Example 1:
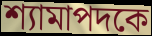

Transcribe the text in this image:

শ্যামাপদকে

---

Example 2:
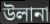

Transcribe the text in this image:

উলানা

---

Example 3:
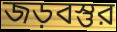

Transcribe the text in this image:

জড়বস্তুর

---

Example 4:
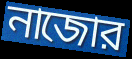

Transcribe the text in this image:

নাজোর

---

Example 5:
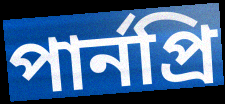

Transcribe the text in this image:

পার্নপ্রি